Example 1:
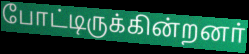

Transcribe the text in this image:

போட்டிருக்கின்றனர்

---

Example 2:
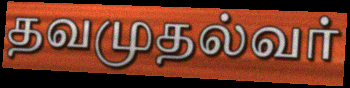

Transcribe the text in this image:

தவமுதல்வர்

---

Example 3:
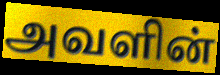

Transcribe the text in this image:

அவளின்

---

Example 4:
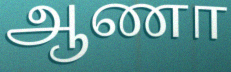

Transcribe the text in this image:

ஆணா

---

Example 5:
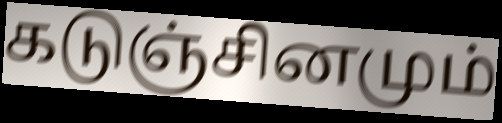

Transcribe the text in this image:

கடுஞ்சினமும்